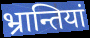
भ्रान्तियां